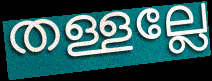
തള്ളല്ലേ